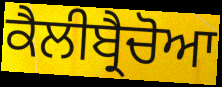
ਕੈਲੀਬ੍ਰੈਚੋਆ